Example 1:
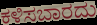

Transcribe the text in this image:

ಕಳಿಸಬಾರದು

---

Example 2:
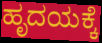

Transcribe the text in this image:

ಹೃದಯಕ್ಕೆ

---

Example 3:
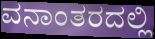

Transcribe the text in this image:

ವನಾಂತರದಲ್ಲಿ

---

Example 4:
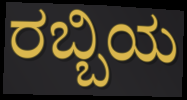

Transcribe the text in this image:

ರಬ್ಬಿಯ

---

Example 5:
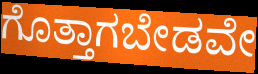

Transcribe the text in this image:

ಗೊತ್ತಾಗಬೇಡವೇ